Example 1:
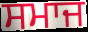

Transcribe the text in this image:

ਸਮਾਜ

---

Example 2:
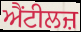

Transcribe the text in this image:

ਐਂਟੀਲਜ਼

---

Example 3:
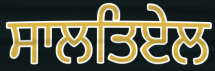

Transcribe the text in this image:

ਸਾਲਤਿਏਲ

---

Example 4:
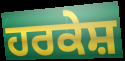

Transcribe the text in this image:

ਹਰਕੇਸ਼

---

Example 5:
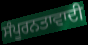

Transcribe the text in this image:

ਸੰਪੂਰਨਤਾਵਾਦੀ